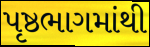
પૃષ્ઠભાગમાંથી